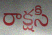
రాక్షసీ